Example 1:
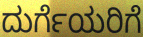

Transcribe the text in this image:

ದುರ್ಗೆಯರಿಗೆ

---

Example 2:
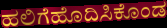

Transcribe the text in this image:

ಹಲಿಗೆಹೊದಿಸಿಕೊಂಡ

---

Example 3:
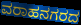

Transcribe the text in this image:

ವರಾಹನಗರದ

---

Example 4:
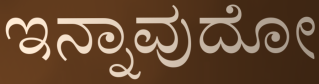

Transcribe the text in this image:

ಇನ್ನಾವುದೋ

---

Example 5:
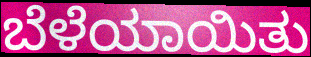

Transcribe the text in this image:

ಬೆಳೆಯಾಯಿತು